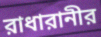
রাধারানীর